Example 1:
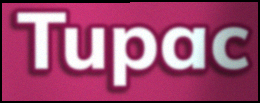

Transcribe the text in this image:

Tupac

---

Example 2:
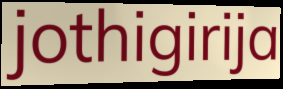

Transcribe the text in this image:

jothigirija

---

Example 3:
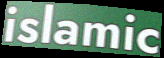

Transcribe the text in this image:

islamic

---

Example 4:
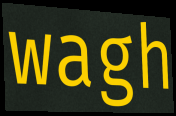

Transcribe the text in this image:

wagh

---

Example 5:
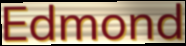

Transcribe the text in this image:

Edmond